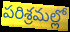
పరిశ్రమల్లో